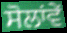
ਸੋਲਾਂਵੇਂ